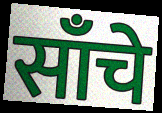
साँचे